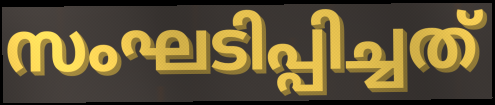
സംഘടിപ്പിച്ചത്